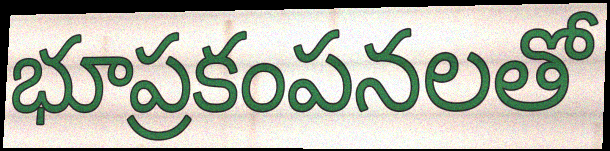
భూప్రకంపనలతో